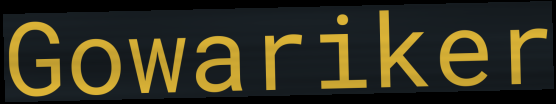
Gowariker